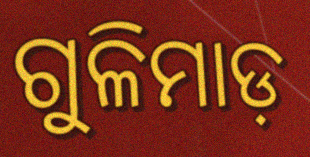
ଗୁଳିମାଡ଼